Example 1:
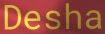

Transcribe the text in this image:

Desha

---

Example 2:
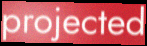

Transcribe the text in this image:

projected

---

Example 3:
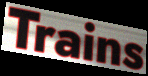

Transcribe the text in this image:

Trains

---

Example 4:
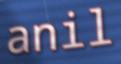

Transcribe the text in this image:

anil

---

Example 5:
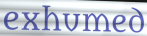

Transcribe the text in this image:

exhumed